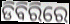
ଡିବିରିରେ